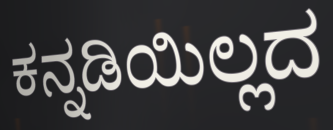
ಕನ್ನಡಿಯಿಲ್ಲದ